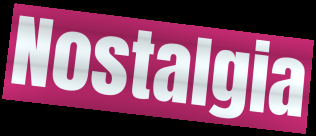
Nostalgia